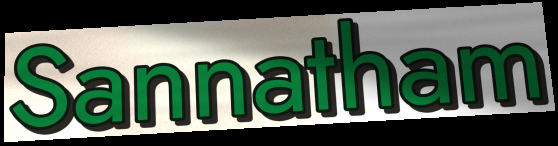
Sannatham